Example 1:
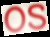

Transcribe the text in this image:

OS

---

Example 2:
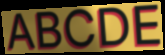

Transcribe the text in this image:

ABCDE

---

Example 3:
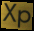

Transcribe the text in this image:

Xp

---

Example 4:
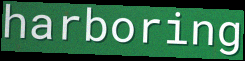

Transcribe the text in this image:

harboring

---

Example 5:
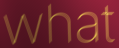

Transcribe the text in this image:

what